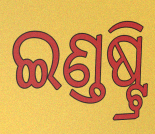
ଇଣ୍ଡଷ୍ଟ୍ରି